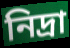
নিদ্রা